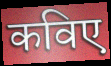
कविए